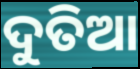
ଦୁତିଆ